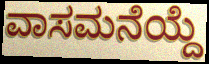
ವಾಸಮನೆಯ್ದೆ